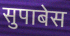
सुपाबेस